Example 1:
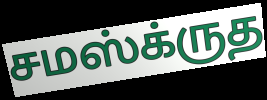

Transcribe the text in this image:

சமஸ்க்ருத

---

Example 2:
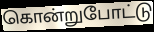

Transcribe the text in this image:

கொன்றுபோட்டு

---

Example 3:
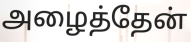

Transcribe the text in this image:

அழைத்தேன்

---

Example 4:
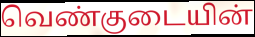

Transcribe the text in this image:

வெண்குடையின்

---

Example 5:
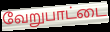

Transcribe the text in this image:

வேறுபாட்டை